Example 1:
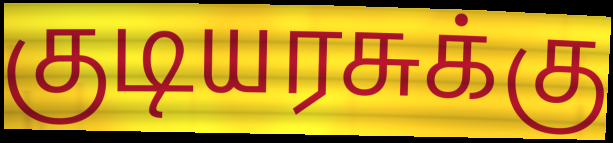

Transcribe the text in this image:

குடியரசுக்கு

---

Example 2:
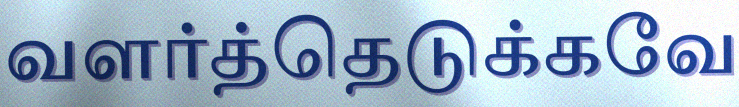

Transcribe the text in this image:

வளர்த்தெடுக்கவே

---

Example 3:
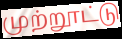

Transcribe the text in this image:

முற்றூட்டு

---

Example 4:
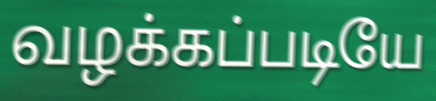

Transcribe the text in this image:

வழக்கப்படியே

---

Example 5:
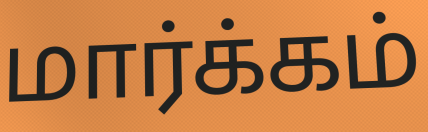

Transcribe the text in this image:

மார்க்கம்